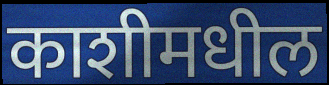
काशीमधील